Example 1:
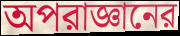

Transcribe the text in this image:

অপরাজ্ঞানের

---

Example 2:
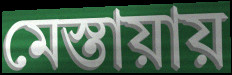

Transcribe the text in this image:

মেস্তায়ায়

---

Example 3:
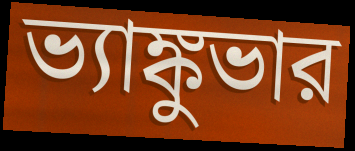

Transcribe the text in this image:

ভ্যাঙ্কুভার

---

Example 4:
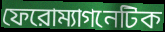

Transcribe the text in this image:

ফেরোম্যাগনেটিক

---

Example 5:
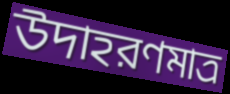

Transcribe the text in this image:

উদাহরণমাত্র